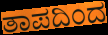
ತಾಪದಿಂದ